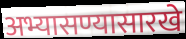
अभ्यासण्यासारखे